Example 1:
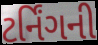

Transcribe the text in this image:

ટર્નિંગની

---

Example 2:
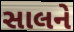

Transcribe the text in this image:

સાલને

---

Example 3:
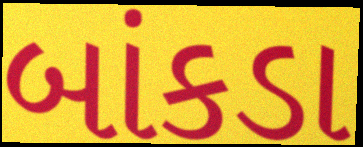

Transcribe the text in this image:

બાંકડા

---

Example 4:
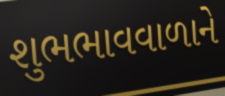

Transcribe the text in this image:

શુભભાવવાળાને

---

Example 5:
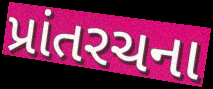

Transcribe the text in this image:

પ્રાંતરચના